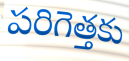
పరిగెత్తకు